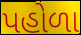
પહોળા